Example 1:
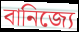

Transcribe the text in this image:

বানিজ্যে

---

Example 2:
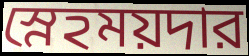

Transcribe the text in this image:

স্নেহময়দার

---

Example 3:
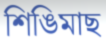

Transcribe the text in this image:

শিঙিমাছ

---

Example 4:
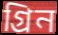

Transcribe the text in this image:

গ্রিন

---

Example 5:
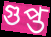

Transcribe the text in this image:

গুপ্ত